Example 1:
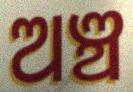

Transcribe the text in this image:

ଅଞ୍ଚ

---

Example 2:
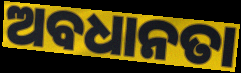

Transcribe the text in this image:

ଅବଧାନତା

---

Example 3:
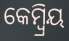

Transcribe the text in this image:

କେମ୍ବ୍ରିୟ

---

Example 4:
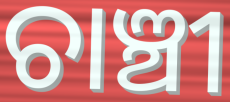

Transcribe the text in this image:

ଚାଞ୍ଚୀ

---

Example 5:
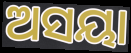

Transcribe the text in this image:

ଅସୟା